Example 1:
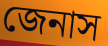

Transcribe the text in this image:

জেনাস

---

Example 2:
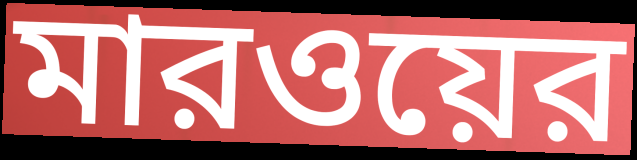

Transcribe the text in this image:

মারওয়ের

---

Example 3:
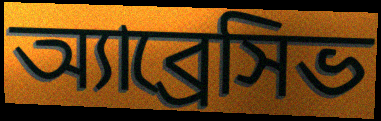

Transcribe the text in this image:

অ্যাব্রেসিভ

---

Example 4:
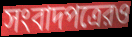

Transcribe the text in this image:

সংবাদপত্রেরও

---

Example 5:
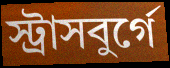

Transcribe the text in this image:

স্ট্রাসবুর্গে